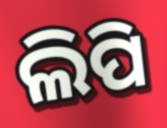
ଲିପି